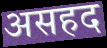
असहद